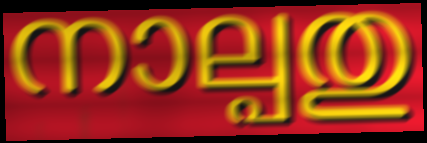
നാല്പതു